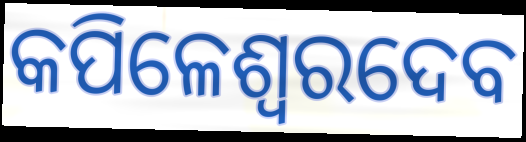
କପିଳେଶ୍ୱରଦେବ